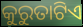
କୁରୁତାଟିଏ